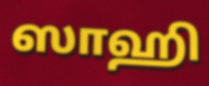
ஸாஹி